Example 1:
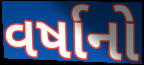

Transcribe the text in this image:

વર્ષાનો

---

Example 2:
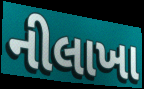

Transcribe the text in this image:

નીલાખા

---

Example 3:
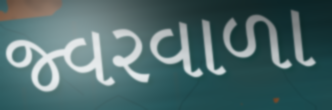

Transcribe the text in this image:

જ્વરવાળા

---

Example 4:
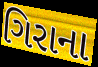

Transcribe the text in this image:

ગિરાના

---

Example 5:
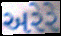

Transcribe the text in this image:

અરેરે